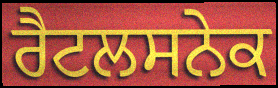
ਰੈਟਲਸਨੇਕ